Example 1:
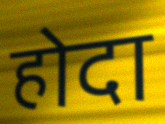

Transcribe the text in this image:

होदा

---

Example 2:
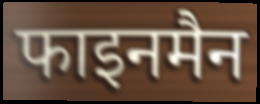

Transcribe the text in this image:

फाइनमैन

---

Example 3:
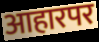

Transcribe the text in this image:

आहारपर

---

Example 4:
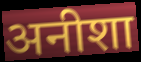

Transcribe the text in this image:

अनीशा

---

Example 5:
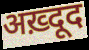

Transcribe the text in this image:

अख़्दूद